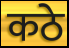
कठे